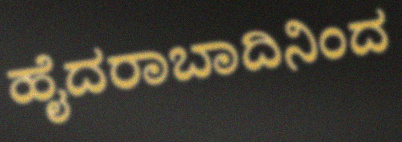
ಹೈದರಾಬಾದಿನಿಂದ